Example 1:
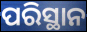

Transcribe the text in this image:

ପରିସ୍ଥାନ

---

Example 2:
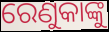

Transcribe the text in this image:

ରେଣୁକାଙ୍କୁ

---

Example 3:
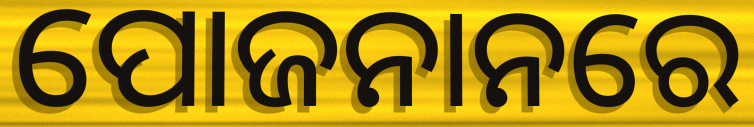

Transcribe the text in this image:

ପୋଜନାନରେ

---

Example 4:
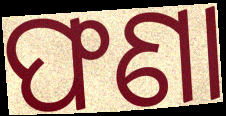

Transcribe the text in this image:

ଫଣା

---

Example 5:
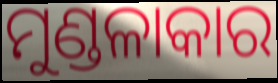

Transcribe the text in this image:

ମୁଣ୍ଡଳାକାର